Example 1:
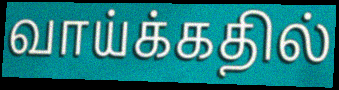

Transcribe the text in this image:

வாய்க்கதில்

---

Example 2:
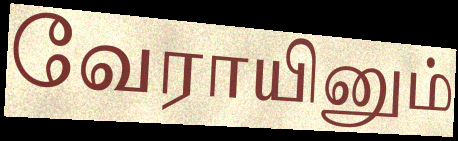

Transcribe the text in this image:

வேராயினும்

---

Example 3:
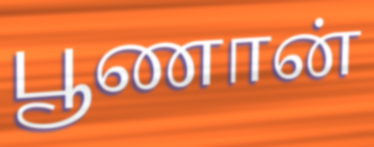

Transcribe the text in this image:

பூணான்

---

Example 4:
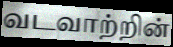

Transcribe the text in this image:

வடவாற்றின்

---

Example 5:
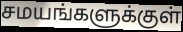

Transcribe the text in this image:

சமயங்களுக்குள்